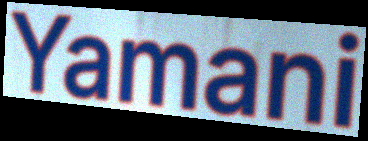
Yamani